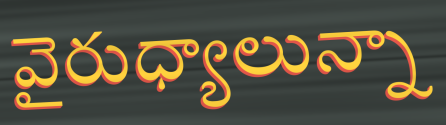
వైరుధ్యాలున్నా